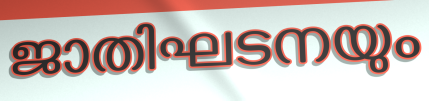
ജാതിഘടനയും